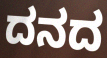
ದನದ